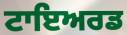
ਟਾਇਅਰਡ